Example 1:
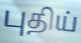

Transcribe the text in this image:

புதிய்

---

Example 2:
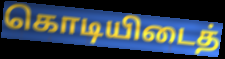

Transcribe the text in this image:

கொடியிடைத்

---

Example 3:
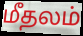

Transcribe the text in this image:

மீதலம்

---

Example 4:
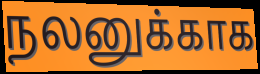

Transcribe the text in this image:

நலனுக்காக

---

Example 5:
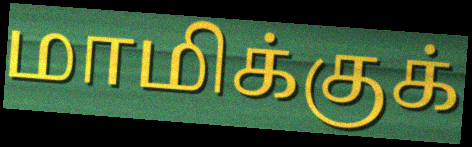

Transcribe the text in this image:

மாமிக்குக்